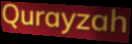
Qurayzah